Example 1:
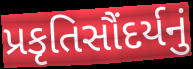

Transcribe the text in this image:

પ્રકૃતિસૌંદર્યનું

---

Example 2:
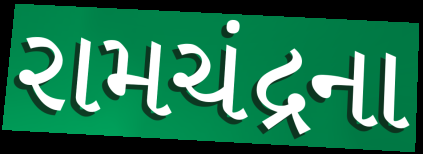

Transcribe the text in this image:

રામચંદ્રના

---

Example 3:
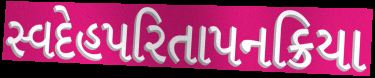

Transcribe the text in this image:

સ્વદેહપરિતાપનક્રિયા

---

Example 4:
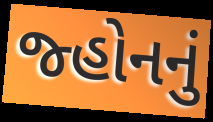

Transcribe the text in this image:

જ્હોનનું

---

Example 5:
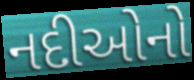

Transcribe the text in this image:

નદીઓનો